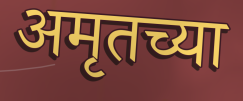
अमृतच्या